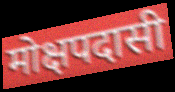
मोक्षपदासी